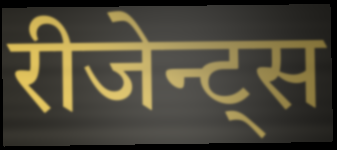
रीजेन्ट्स